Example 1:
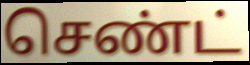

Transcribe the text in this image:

செண்ட்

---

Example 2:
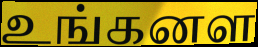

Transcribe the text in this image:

உங்கனள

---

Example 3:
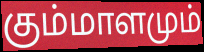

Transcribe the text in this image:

கும்மாளமும்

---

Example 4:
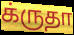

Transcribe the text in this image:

க்ருதா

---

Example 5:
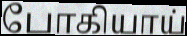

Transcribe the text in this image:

போகியாய்